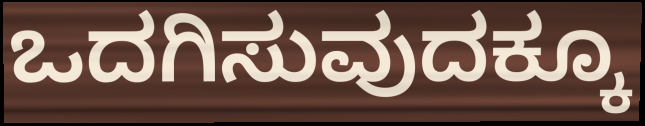
ಒದಗಿಸುವುದಕ್ಕೂ